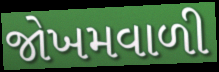
જોખમવાળી